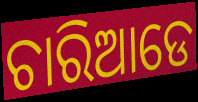
ଚାରିଆଡେ